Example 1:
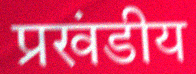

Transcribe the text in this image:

प्रखंडीय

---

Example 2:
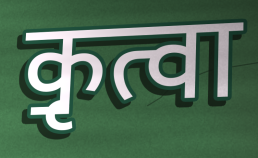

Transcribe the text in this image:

कृ॒त्वा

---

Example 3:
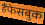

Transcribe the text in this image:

हैंफेसबुक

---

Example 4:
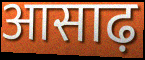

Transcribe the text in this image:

आसाढ़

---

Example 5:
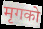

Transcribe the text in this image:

मृगको